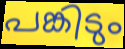
പങ്കിടും